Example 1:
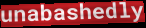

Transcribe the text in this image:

unabashedly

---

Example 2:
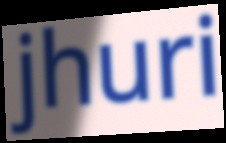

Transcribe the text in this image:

jhuri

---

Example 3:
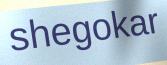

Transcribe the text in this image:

shegokar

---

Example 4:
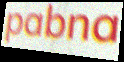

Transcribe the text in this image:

pabna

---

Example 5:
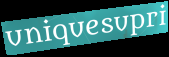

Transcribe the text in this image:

uniquesupri